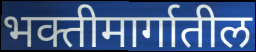
भक्तीमार्गातील